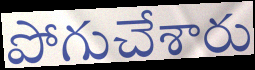
పోగుచేశారు